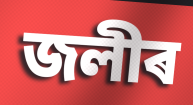
জলীৰ